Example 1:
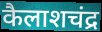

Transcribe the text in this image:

कैलाशचंद्र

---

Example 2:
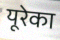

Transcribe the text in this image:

यूरेका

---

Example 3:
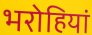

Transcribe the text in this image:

भरोहियां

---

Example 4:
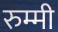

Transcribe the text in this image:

रुम्मी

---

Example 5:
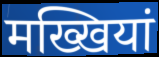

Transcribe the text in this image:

मख्खियां